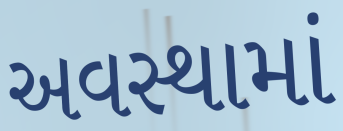
અવસ્થામાં